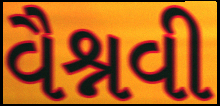
વૈશ્નવી